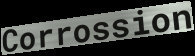
Corrossion